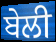
ਬੇਲੀ